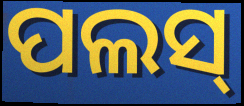
ପଲସ୍